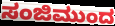
ಸಂಜಿಮುಂದ